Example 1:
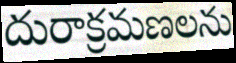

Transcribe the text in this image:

దురాక్రమణలను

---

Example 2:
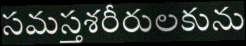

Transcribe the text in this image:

సమస్తశరీరులకును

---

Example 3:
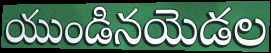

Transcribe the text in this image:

యుండినయెడల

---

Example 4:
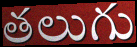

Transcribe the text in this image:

తలుగు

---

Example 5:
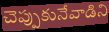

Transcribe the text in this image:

చెప్పుకునేవాడిని